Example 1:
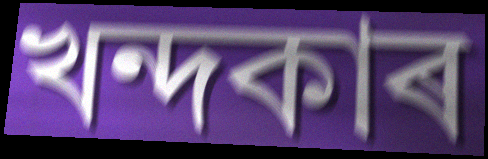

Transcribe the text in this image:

খন্দকাৰ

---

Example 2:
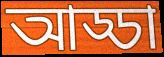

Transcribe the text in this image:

আড্ডা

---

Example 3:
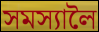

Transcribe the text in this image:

সমস্যালৈ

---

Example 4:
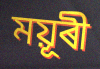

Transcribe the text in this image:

ময়ূৰী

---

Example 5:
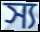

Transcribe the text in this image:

স্য